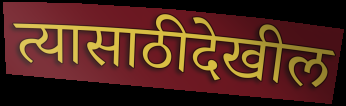
त्यासाठीदेखील